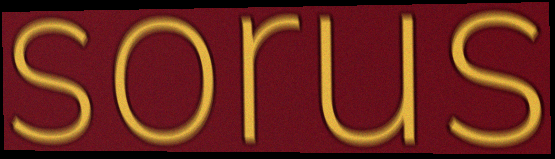
sorus